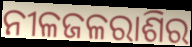
ନୀଳଜଳରାଶିର